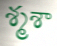
శ్మశా